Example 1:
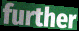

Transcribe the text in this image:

further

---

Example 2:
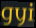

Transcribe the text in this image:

gyi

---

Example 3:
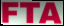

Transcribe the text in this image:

FTA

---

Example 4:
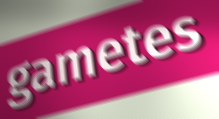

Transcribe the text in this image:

gametes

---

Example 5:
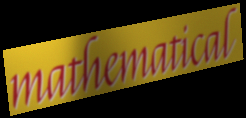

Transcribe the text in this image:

mathematical